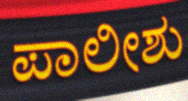
ಪಾಲೀಶು